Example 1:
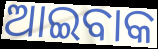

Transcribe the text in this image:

ଆଇବାକ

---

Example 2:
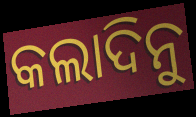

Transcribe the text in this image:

କଲାଦିନୁ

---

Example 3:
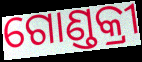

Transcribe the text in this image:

ଗୋଣ୍ଡକ୍ରୀ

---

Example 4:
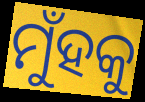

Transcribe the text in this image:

ମୁଁହକୁ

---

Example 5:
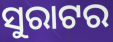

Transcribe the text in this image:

ସୁରାଟର